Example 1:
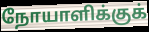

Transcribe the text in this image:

நோயாளிக்குக்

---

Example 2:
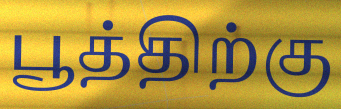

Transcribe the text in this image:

பூத்திற்கு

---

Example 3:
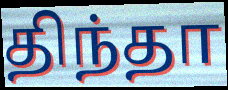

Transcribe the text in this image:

திந்தா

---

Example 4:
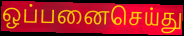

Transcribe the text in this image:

ஒப்பனைசெய்து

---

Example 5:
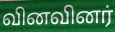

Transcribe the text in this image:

வினவினர்